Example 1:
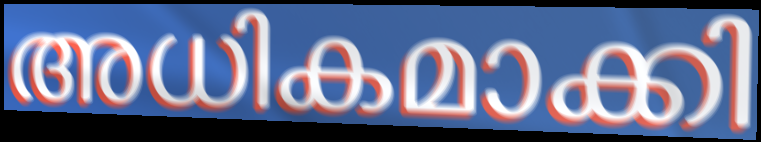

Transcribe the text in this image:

അധികമാക്കി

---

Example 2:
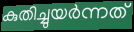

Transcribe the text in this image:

കുതിച്ചുയർന്നത്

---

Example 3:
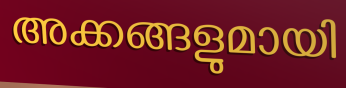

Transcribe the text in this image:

അക്കങ്ങളുമായി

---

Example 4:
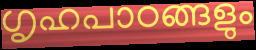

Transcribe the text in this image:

ഗൃഹപാഠങ്ങളും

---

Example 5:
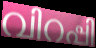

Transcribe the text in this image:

വിറപ്പി